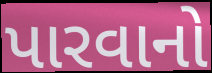
પારવાનો